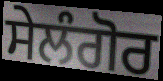
ਸੇਲੰਗੋਰ